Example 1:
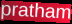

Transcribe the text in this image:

pratham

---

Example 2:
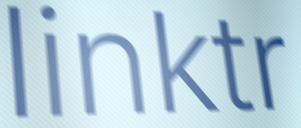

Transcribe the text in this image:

linktr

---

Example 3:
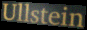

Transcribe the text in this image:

Ullstein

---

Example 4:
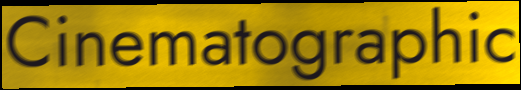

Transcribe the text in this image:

Cinematographic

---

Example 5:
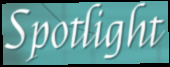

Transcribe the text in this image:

Spotlight